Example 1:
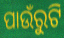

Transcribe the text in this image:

ପାଉଁରୁଟି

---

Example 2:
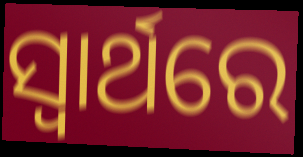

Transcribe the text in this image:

ସ୍ଵାର୍ଥରେ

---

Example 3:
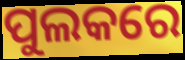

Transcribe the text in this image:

ପୁଲକରେ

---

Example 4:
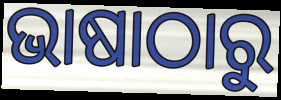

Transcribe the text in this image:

ଭାଷାଠାରୁ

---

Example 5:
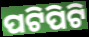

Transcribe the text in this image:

ପଟିପିଟି